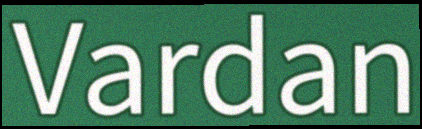
Vardan